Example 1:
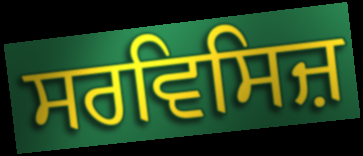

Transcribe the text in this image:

ਸਰਵਿਸਿਜ਼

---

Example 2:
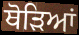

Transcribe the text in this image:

ਥੋੜਿਆਂ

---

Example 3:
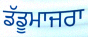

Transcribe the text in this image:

ਡੱਡੂਮਾਜਰਾ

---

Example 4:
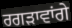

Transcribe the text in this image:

ਰਗੜਾਵਾਂਗੇ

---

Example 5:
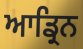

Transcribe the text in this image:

ਆਡ੍ਰਿਨ